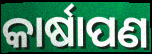
କାର୍ଷାପଣ